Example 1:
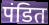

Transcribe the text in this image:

पंडित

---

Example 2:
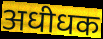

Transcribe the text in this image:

अधीधक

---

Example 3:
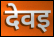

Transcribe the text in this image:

देवइ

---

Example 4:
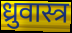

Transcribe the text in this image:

ध्रुवास्त्र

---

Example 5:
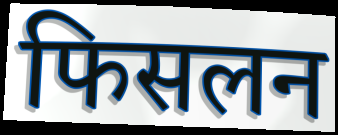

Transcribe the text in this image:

फिसलन